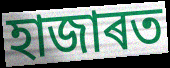
হাজাৰত